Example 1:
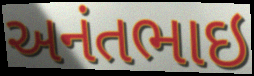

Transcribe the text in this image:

અનંતભાઇ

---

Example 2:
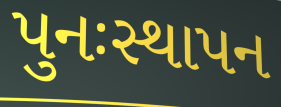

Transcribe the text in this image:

પુનઃસ્થાપન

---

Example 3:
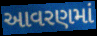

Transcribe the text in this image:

આવરણમાં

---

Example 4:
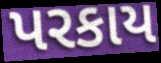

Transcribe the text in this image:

પરકાય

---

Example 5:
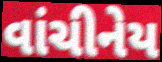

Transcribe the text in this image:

વાંચીનેય